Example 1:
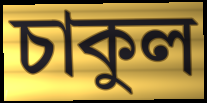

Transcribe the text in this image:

চাকুল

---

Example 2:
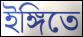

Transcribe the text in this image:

ইঙ্গিতে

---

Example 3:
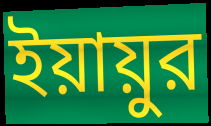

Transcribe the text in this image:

ইয়ায়ুর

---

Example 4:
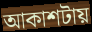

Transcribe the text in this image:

আকাশটায়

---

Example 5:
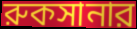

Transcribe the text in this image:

রুকসানার